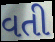
વતી